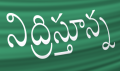
నిద్రిస్తూన్న